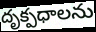
దృక్పధాలను